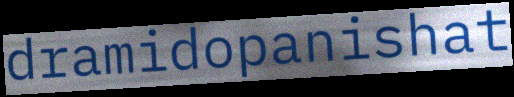
dramidopanishat